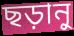
ছড়ানু